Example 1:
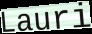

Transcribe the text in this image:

Lauri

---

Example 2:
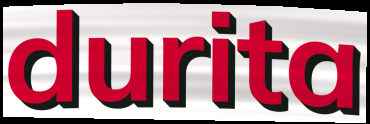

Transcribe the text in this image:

durita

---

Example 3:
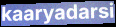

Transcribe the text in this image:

kaaryadarsi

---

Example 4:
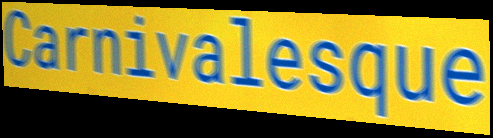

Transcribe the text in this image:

Carnivalesque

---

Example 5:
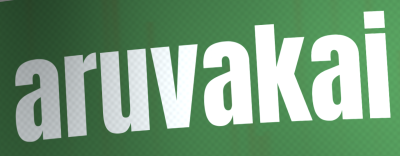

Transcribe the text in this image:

aruvakai